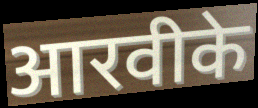
आरवीके